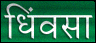
धिंवसा